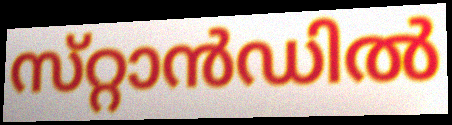
സ്‌റ്റാൻഡിൽ